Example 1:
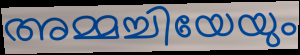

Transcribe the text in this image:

അമ്മച്ചിയേയും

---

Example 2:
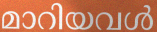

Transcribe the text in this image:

മാറിയവൾ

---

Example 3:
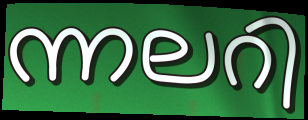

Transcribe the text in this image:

ന്നലറി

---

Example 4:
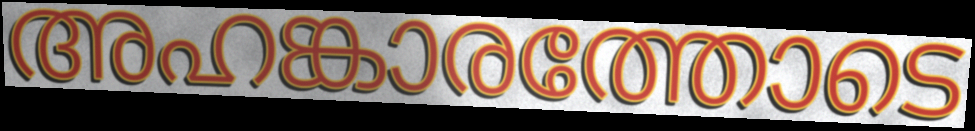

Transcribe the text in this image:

അഹങ്കാരത്തോടെ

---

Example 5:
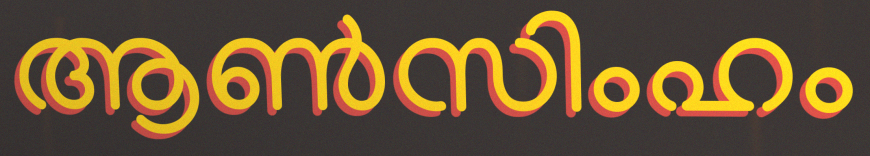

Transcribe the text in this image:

ആൺസിംഹം